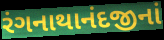
રંગનાથાનંદજીનાં